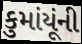
કુમાંયૂંની